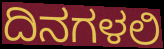
ದಿನಗಳಲಿ